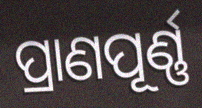
ପ୍ରାଣପୂର୍ଣ୍ଣ